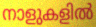
നാളുകളിൽ